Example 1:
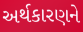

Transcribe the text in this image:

અર્થકારણને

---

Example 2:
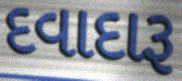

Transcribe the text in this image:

દવાદારૂ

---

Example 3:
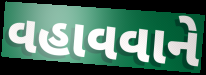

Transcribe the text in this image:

વહાવવાને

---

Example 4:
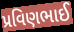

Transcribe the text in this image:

પ્રવિણભાઈ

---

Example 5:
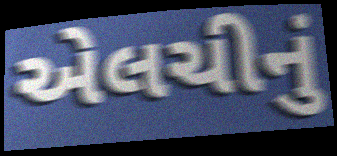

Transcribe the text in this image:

એલચીનું